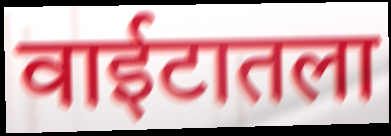
वाईटातला